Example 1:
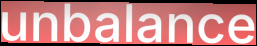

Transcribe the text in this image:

unbalance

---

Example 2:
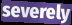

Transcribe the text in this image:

severely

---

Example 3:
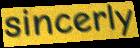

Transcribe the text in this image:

sincerly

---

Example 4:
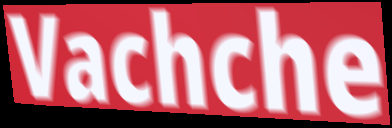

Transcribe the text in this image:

Vachche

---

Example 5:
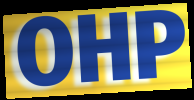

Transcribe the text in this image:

OHP